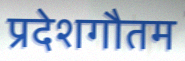
प्रदेशगौतम